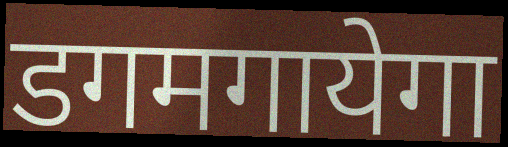
डगमगायेगा